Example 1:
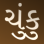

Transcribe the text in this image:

ચુંકુ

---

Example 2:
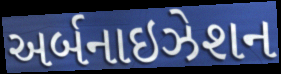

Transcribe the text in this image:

અર્બનાઇઝેશન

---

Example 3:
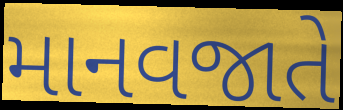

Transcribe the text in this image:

માનવજાતે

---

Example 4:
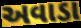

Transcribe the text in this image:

અવાડા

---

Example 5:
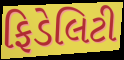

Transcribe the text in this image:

ફિડેલિટી